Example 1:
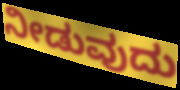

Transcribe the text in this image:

ನೀಡುವುದು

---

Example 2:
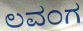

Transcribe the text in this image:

ಲವಂಗ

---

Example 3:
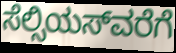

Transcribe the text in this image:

ಸೆಲ್ಸಿಯಸ್‍ವರೆಗೆ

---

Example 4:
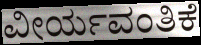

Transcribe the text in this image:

ವೀರ್ಯವಂತಿಕೆ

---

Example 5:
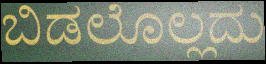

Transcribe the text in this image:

ಬಿಡಲೊಲ್ಲದು